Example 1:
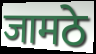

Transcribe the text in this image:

जामठे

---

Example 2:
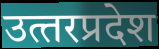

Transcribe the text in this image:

उत्‍तरप्रदेश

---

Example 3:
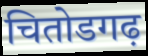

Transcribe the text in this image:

चितोडगढ़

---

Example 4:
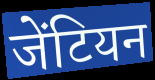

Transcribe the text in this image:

जेंटियन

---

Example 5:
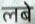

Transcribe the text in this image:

लबे